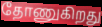
தோணுகிறது